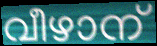
വീഴാന്